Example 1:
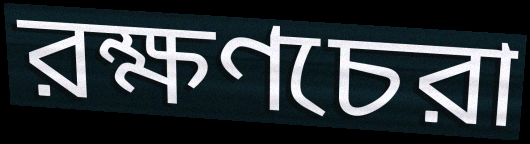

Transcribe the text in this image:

রক্ষণচেরা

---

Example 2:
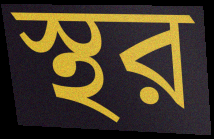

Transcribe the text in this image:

স্থর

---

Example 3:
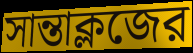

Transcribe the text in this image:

সান্তাক্লজের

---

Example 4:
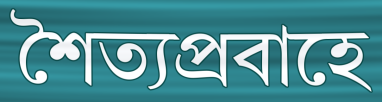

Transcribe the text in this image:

শৈত্যপ্রবাহে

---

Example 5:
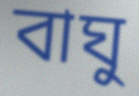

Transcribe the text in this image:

বাঘু